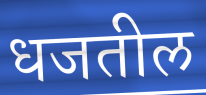
धजतील